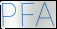
PFA